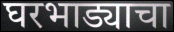
घरभाड्याचा